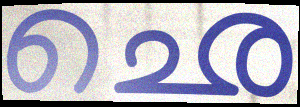
ഛെ